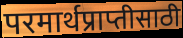
परमार्थप्राप्तीसाठी